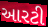
આરટી